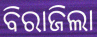
ବିରାଜିଲା